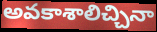
అవకాశాలిచ్చినా